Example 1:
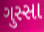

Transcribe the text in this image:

ગુસ્સા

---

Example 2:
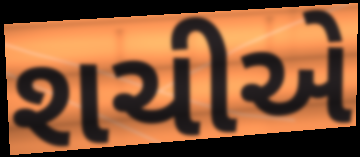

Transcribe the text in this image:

શચીએ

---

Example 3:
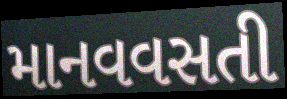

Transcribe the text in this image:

માનવવસતી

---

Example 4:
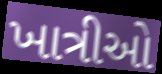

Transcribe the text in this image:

ખાત્રીઓ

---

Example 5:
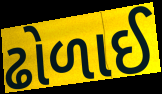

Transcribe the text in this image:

ઢોળાઈ